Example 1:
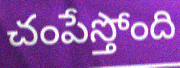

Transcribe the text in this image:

చంపేస్తోంది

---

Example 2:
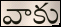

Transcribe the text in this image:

వాకు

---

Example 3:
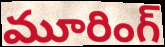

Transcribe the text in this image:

మూరింగ్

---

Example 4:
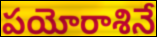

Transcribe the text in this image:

పయోరాశినే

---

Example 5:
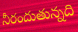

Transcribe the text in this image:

నీరందుతున్నది